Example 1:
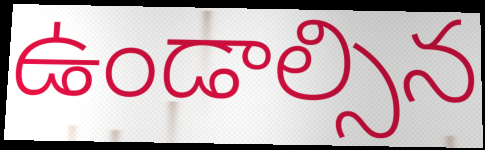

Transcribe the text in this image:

ఉండాల్సిన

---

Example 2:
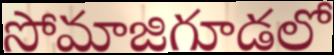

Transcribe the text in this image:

సోమాజిగూడలో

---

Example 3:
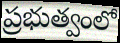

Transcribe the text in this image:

ప్రభుత్వంలో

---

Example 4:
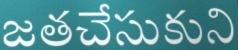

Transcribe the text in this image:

జతచేసుకుని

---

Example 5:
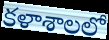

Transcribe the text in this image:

కళాశాలలో